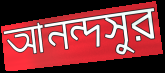
আনন্দসুর